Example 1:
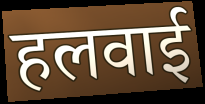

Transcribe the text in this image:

हलवाई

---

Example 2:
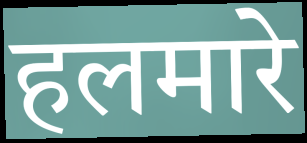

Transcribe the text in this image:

हलमारे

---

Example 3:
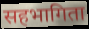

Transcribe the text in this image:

सहभागिता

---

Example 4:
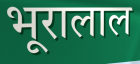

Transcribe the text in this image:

भूरालाल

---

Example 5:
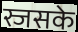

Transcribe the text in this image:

स्जसके